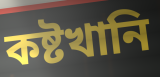
কষ্টখানি